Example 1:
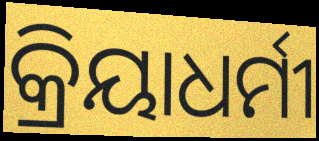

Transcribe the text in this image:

କ୍ରିୟାଧର୍ମୀ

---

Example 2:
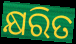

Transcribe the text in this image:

କ୍ଷରିତ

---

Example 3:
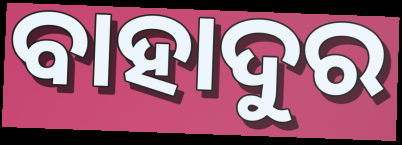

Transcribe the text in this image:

ବାହାଦୁର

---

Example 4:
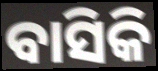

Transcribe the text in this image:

ବାସିକି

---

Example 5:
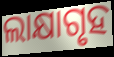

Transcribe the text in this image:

ଲାକ୍ଷାଗୃହ